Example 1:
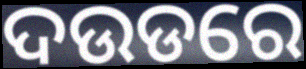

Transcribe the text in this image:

ଦଉଡରେ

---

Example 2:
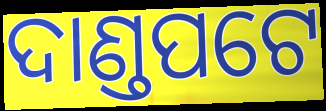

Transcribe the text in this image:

ଦାଣ୍ଡପଟେ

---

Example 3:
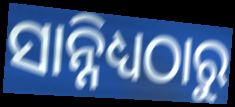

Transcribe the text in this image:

ସାନ୍ନିଧ୍ୟଠାରୁ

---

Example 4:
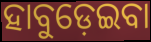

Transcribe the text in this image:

ହାବୁଡ଼େଇବା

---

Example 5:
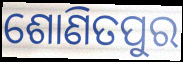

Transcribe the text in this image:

ଶୋଣିତପୁର